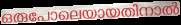
ഒരുപോലെയായതിനാൽ